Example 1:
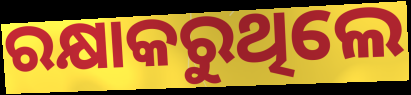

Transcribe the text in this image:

ରକ୍ଷାକରୁଥିଲେ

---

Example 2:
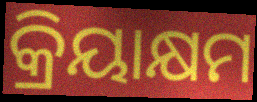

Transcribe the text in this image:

କ୍ରିୟାକ୍ଷମ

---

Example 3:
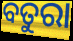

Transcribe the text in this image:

ବତୁରା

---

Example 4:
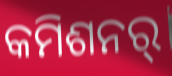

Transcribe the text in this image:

କମିଶନର୍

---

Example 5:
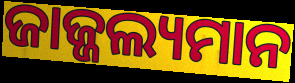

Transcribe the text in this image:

ଜାଜ୍ଜଲ୍ୟମାନ